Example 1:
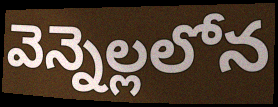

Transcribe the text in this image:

వెన్నెల్లలోన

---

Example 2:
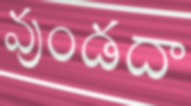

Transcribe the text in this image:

వుండదా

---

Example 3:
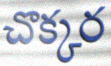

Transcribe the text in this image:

చొక్కర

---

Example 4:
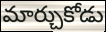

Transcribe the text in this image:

మార్చుకోడు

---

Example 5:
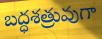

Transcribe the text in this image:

బద్ధశత్రువుగా